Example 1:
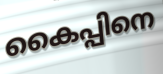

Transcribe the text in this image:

കൈപ്പിനെ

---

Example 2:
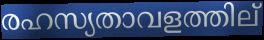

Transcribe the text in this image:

രഹസ്യതാവളത്തില്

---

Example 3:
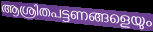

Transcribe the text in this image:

ആശ്രിതപട്ടണങ്ങളെയും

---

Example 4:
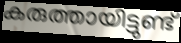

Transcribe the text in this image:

കരുത്തായിട്ടുണ്ട്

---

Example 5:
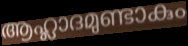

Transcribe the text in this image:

ആഹ്ലാദമുണ്ടാകും